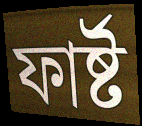
ফাৰ্ষ্ট